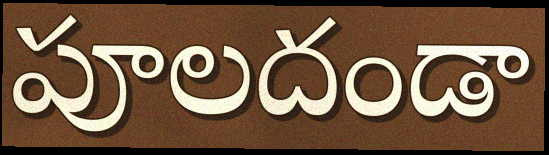
పూలదండా